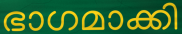
ഭാഗമാക്കി